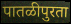
पातळीपुरता